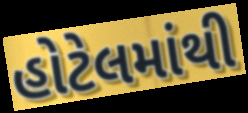
હોટેલમાંથી